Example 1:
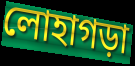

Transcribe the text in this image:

লোহাগড়া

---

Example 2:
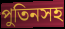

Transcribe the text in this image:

পুতিনসহ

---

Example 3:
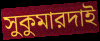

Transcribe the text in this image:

সুকুমারদাই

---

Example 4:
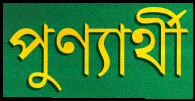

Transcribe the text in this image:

পুণ্যার্থী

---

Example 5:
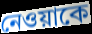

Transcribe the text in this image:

নেওয়াকে